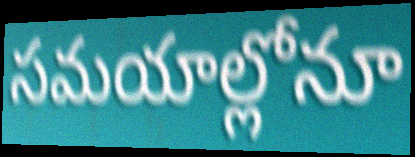
సమయాల్లోనూ